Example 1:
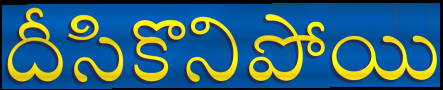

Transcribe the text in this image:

దీసికొనిపోయి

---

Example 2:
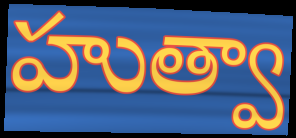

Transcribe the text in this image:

హుత్వా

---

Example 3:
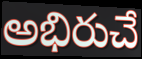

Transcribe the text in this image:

అభిరుచే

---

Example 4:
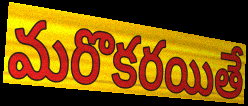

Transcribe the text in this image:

మరొకరయితే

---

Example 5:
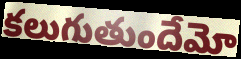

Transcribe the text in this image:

కలుగుతుందేమో